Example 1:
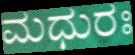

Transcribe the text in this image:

ಮಧುರಃ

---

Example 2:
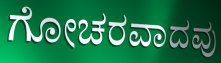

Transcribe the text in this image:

ಗೋಚರವಾದವು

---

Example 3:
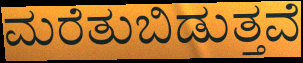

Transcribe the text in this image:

ಮರೆತುಬಿಡುತ್ತವೆ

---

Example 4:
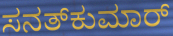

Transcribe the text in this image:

ಸನತ್‌ಕುಮಾರ್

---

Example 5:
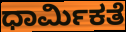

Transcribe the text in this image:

ಧಾರ್ಮಿಕತೆ